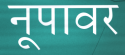
नूपावर